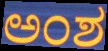
ಅಂಶ